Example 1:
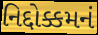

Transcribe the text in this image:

નિદ્દોક્કમનં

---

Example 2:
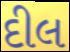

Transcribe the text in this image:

દીલ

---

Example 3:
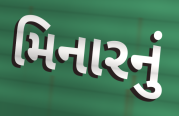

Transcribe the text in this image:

મિનારનું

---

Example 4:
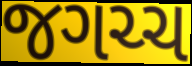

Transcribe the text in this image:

જગચ્ચ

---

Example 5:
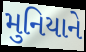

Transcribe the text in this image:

મુનિયાને